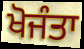
ਖੋਜੰਤਾ